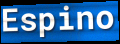
Espino